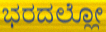
ಭರದಲ್ಲೋ